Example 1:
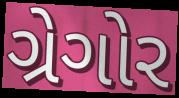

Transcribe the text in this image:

ગ્રેગોર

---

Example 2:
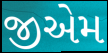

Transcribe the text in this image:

જીએમ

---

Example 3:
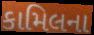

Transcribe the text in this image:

કામિલના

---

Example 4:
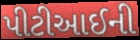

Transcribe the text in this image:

પીટીઆઈની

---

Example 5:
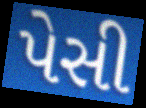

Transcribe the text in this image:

પેસી